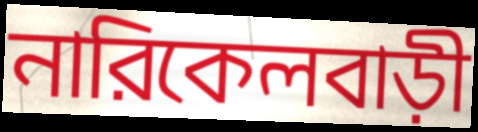
নারিকেলবাড়ী